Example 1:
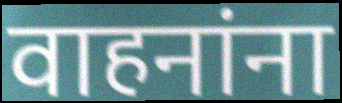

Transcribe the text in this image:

वाहनांना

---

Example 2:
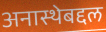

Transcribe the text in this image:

अनास्थेबद्दल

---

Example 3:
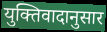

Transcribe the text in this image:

युक्तिवादानुसार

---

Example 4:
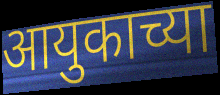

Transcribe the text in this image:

आयुकाच्या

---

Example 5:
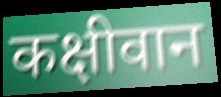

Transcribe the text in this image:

कक्षीवान